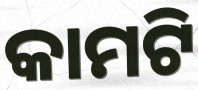
କାମଟି